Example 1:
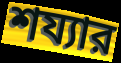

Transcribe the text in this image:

শয্যার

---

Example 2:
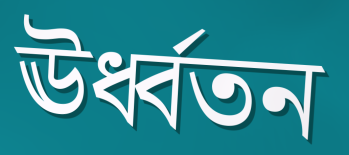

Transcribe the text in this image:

ঊর্ধ্বতন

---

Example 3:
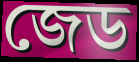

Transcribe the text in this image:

জেড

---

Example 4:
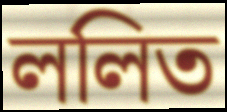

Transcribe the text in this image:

ললিত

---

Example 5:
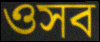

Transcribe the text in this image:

ওসব